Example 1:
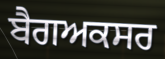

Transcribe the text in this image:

ਬੈਗਅਕਸਰ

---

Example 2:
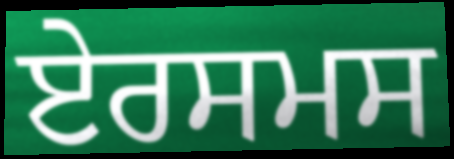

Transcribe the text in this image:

ਏਰਸਮਸ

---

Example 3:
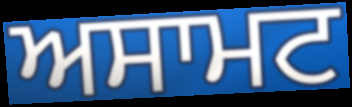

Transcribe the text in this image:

ਅਸਾਮਟ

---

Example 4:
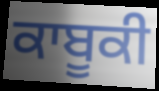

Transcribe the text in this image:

ਕਾਬੂਕੀ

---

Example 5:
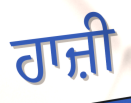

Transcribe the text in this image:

ਹਾਜ਼ੀ